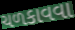
ચળકાવવા